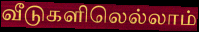
வீடுகளிலெல்லாம்